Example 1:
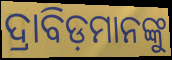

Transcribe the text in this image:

ଦ୍ରାବିଡ଼ମାନଙ୍କୁ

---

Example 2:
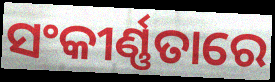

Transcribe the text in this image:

ସଂକୀର୍ଣ୍ଣତାରେ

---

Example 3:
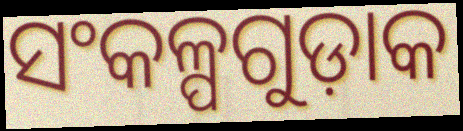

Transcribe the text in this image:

ସଂକଳ୍ପଗୁଡ଼ାକ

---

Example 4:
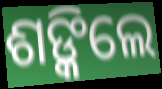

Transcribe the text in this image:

ଶଙ୍କିଲେ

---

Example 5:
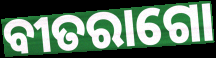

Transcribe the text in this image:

ବୀତରାଗୋ